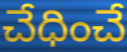
చేధించే